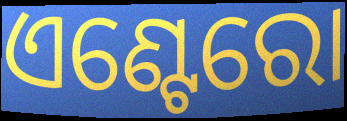
ଏଣ୍ଟେରୋ